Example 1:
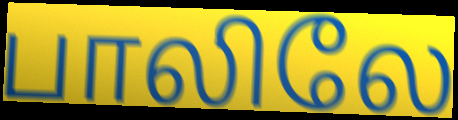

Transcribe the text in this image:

பாலிலே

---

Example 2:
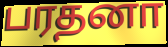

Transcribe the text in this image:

பரதனா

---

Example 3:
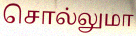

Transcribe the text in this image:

சொல்லுமா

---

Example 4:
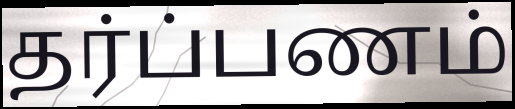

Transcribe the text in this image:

தர்ப்பணம்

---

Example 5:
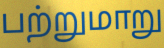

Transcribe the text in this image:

பற்றுமாறு